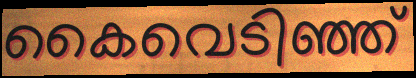
കൈവെടിഞ്ഞ്